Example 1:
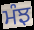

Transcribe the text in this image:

ਮੰਝ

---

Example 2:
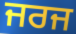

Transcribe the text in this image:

ਜਰਜ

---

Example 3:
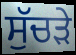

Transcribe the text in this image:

ਸੁੱਚੜੇ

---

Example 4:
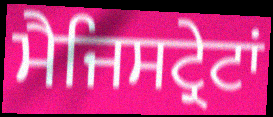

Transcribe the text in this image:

ਮੈਜਿਸਟ੍ਰੇਟਾਂ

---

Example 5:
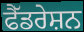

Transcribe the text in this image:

ਫੈੱਡਰੇਸ਼ਨ